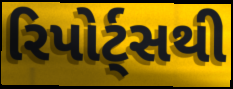
રિપોર્ટ્સથી